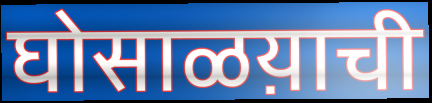
घोसाळय़ाची